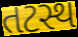
તટસ્થ